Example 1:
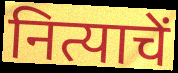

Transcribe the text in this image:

नित्याचें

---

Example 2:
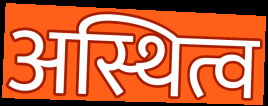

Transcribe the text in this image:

अस्थित्व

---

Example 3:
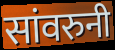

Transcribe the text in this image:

सांवरुनी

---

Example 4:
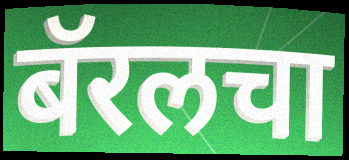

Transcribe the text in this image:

बॅरलचा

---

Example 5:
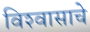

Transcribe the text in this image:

विश्वासाचे